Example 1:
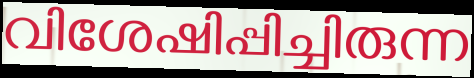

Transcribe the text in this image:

വിശേഷിപ്പിച്ചിരുന്ന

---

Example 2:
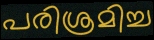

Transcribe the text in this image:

പരിശ്രമിച്ച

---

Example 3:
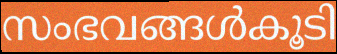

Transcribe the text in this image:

സംഭവങ്ങൾകൂടി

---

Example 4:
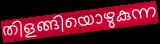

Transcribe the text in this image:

തിളങ്ങിയൊഴുകുന്ന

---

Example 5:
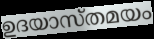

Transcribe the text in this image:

ഉദയാസ്തമയം